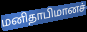
மனிதாபிமானச்